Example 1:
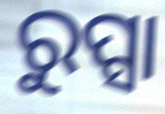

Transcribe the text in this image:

ରୁପ୍ସା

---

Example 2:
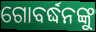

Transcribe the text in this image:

ଗୋବର୍ଦ୍ଧନଙ୍କୁ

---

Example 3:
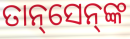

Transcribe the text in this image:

ତାନ୍‌ସେନ୍‌ଙ୍କ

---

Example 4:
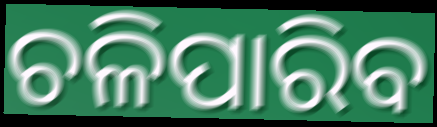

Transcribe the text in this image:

ଚଳିପାରିବ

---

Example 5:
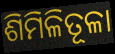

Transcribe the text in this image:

ଶିମିଳିତୂଳା